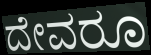
ದೇವರೂ